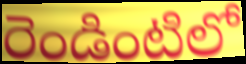
రెండింటిలో